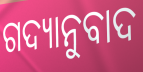
ଗଦ୍ୟାନୁବାଦ